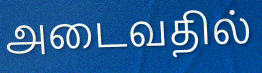
அடைவதில்